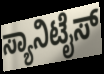
ಸ್ಯಾನಿಟೈಸ್